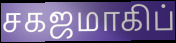
சகஜமாகிப்